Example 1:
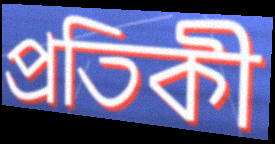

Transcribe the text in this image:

প্ৰতিকী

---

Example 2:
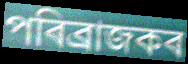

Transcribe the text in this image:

পৰিব্ৰাজকৰ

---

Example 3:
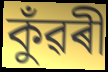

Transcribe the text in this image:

কুঁৱৰী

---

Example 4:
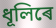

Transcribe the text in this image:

ধূলিৰে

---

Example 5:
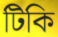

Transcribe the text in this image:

টিকি